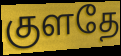
குளதே